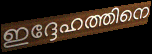
ഇദ്ദേഹത്തിനെ